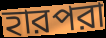
হারপরা